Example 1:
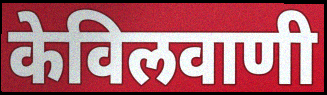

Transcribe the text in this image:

केविलवाणी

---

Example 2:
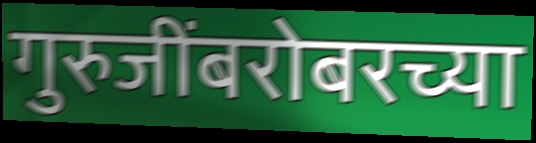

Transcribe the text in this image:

गुरुजींबरोबरच्या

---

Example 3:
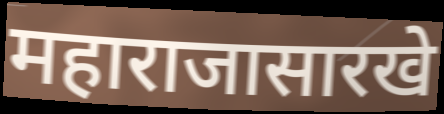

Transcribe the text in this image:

महाराजासारखे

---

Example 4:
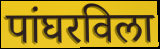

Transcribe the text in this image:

पांघरविला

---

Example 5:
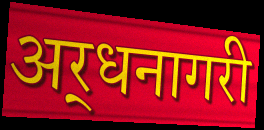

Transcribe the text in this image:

अर्धनागरी